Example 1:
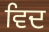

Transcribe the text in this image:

ਵਿਦ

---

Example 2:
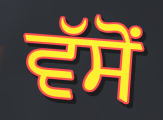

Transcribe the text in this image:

ਵੱਸੋਂ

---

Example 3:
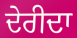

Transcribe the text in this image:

ਦੇਰੀਦਾ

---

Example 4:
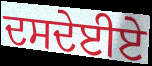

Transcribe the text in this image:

ਦਸਦੇਈਏ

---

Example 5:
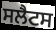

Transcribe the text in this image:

ਸਲੈਟਸ